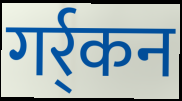
गर्र्कन